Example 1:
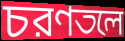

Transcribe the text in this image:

চরণতলে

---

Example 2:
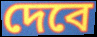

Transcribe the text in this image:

দেবে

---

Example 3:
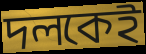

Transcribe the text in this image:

দলকেই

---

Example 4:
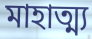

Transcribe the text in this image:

মাহাত্ম্য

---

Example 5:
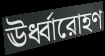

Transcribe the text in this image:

ঊর্ধ্বারোহণ